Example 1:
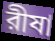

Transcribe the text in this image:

রীষা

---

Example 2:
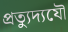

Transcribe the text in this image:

প্রত্যুদ্যযৌ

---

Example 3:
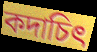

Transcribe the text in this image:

কদাচিৎ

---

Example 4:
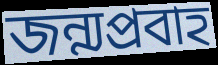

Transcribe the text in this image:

জন্মপ্রবাহ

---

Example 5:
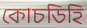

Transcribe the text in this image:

কোচডিহি